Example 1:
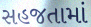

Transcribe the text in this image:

સહજતામાં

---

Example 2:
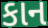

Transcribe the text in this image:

કાન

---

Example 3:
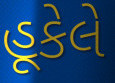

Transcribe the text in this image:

હૂકેલે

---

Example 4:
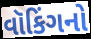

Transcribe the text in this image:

વૉકિંગનો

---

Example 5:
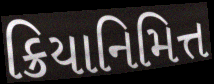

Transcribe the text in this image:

ક્રિયાનિમિત્ત